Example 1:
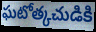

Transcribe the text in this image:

ఘటోత్కచుడికి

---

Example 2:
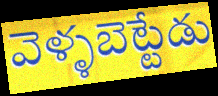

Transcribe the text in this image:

వెళ్ళబెట్టేడు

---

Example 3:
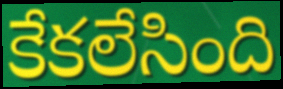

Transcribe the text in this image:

కేకలేసింది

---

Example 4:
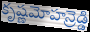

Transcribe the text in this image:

కృష్ణమోహన్రెడ్డి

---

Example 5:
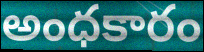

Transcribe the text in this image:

అంధకారం